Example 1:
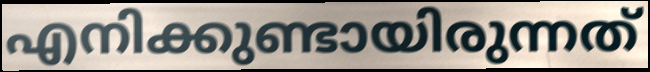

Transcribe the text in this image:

എനിക്കുണ്ടായിരുന്നത്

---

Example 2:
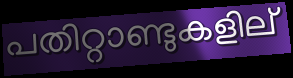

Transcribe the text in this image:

പതിറ്റാണ്ടുകളില്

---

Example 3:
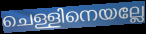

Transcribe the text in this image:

ചെള്ളിനെയല്ലേ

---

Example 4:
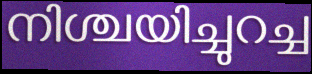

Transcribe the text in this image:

നിശ്ചയിച്ചുറച്ച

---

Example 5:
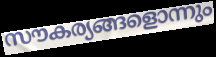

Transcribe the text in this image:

സൗകര്യങ്ങളൊന്നും